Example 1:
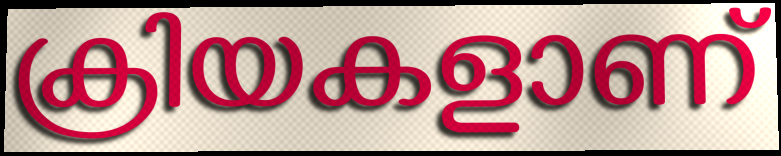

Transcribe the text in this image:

ക്രിയകളാണ്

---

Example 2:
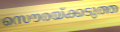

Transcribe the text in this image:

സൌരയ്ക്കടുത്ത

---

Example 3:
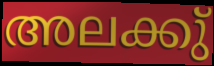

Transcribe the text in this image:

അലക്കു്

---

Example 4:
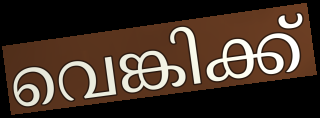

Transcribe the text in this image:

വെങ്കിക്ക്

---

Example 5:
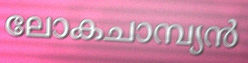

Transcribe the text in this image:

ലോകചാമ്പ്യൻ